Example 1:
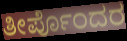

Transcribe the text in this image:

ತೀರ್ಪೊಂದರ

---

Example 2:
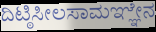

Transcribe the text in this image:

ದಿಟ್ಠಿಸೀಲಸಾಮಞ್ಞೇನ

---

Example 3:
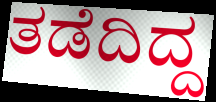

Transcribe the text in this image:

ತಡೆದಿದ್ದ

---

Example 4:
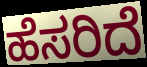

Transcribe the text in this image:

ಹೆಸರಿದೆ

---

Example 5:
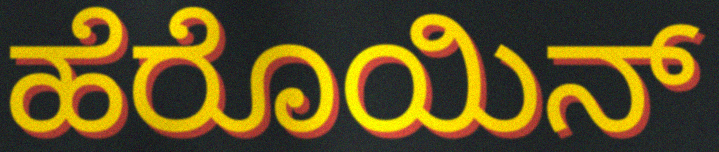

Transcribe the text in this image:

ಹೆರೊಯಿನ್